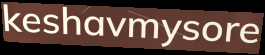
keshavmysore